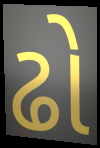
ઢો